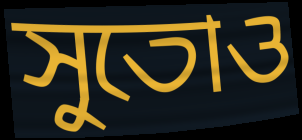
সুতোও